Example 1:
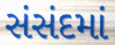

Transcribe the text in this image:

સંસંદમાં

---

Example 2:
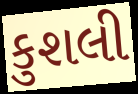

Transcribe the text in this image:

કુશલી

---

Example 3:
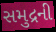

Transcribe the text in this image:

સમુદ્રની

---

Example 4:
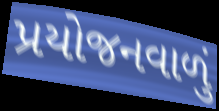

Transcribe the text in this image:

પ્રયોજનવાળું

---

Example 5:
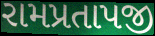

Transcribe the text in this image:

રામપ્રતાપજી